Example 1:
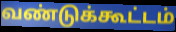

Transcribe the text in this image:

வண்டுக்கூட்டம்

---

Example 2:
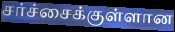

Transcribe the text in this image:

சர்ச்சைக்குள்ளான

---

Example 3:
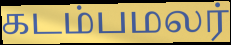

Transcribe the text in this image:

கடம்பமலர்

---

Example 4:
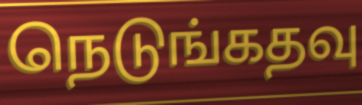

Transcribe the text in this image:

நெடுங்கதவு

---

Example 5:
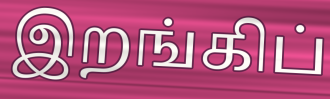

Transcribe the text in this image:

இறங்கிப்